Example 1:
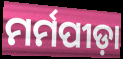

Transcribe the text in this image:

ମର୍ମପୀଡ଼ା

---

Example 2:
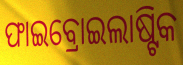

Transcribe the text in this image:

ଫାଇବ୍ରୋଇଲାଷ୍ଟିକ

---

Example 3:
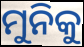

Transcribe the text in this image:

ମୁନିକୁ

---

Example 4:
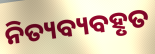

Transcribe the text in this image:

ନିତ୍ୟବ୍ୟବହୃତ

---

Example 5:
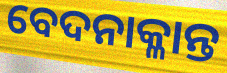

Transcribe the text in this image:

ବେଦନାକ୍ଳାନ୍ତ